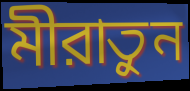
মীরাতুন